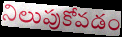
నిలుపుకోవడం